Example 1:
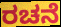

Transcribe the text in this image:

ರಚನೆ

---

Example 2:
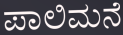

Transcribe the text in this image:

ಪಾಲಿಮನೆ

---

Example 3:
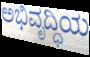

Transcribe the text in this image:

ಅಭಿವೃದ್ಧಿಯ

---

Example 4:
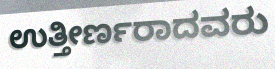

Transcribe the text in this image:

ಉತ್ತೀರ್ಣರಾದವರು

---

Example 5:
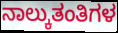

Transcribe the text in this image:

ನಾಲ್ಕುತಂತಿಗಳ